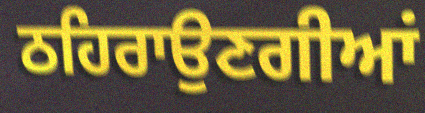
ਠਹਿਰਾਉਣਗੀਆਂ